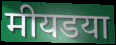
मीयडया